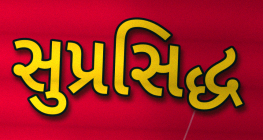
સુપ્રસિદ્ધ